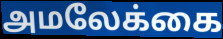
அமலேக்கை